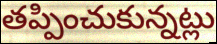
తప్పించుకున్నట్లు